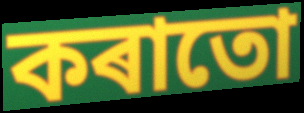
কৰাতো